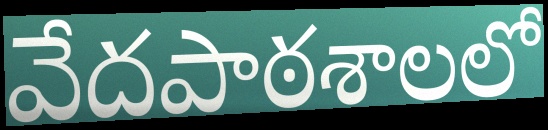
వేదపాఠశాలలో